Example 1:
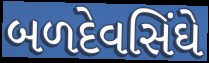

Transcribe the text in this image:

બળદેવસિંઘે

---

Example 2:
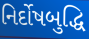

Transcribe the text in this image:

નિર્દોષબુદ્ધિ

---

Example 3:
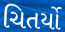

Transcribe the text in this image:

ચિતર્યો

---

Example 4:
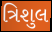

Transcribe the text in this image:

ત્રિશુલ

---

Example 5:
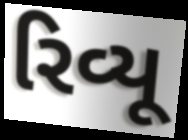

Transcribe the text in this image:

રિવ્યૂ